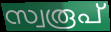
സ്വരൂപ്